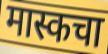
मास्कचा